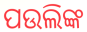
ପଉଲିଙ୍କ